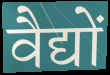
वैद्यों